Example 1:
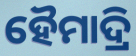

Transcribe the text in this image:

ହୈମାଦ୍ରି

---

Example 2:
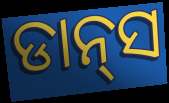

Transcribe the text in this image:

ଡାନ୍‍ସ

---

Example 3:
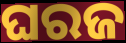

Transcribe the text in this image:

ଘରଜ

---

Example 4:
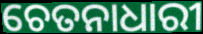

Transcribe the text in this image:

ଚେତନାଧାରୀ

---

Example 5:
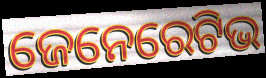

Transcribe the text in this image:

ଜେନେରେଟିଭ